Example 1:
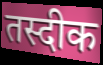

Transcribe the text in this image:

तस्‍दीक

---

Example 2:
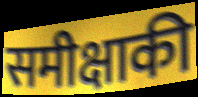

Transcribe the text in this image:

समीक्षाकी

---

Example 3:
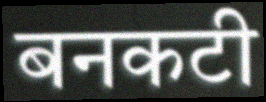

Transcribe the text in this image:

बनकटी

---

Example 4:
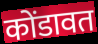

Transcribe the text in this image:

कोंडावत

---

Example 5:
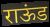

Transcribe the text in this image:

राऊंड